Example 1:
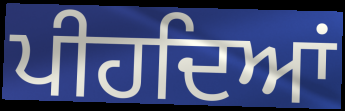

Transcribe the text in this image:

ਪੀਹਦਿਆਂ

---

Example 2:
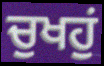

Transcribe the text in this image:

ਚੁਖਹੁਂ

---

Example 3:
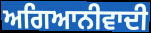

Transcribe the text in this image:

ਅਗਿਆਨੀਵਾਦੀ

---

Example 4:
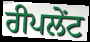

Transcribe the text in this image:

ਰੀਪਲੇਂਟ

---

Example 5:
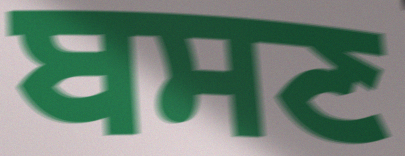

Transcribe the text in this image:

ਬਸਣ